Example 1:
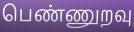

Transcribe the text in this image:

பெண்ணுறவு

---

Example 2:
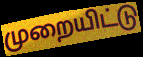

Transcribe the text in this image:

முறையிட்டு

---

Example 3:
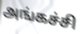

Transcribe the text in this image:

அங்கச்சி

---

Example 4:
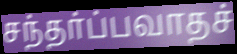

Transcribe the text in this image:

சந்தர்ப்பவாதச்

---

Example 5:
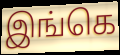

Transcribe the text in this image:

இங்கெ